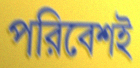
পরিবেশই